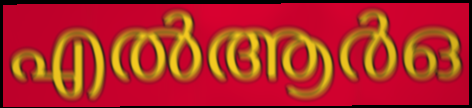
എൽആർഒ